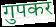
गुपकर